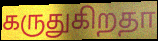
கருதுகிறதா